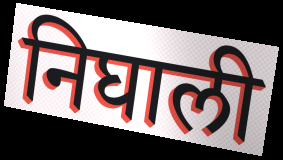
निघाली